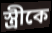
স্ত্রীকে